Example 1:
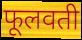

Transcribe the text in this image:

फूलवती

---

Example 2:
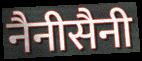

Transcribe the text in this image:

नैनीसैनी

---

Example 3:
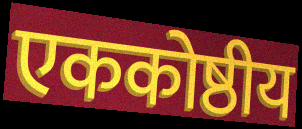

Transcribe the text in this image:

एककोष्ठीय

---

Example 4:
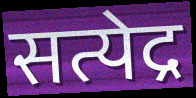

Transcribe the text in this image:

सत्येद्र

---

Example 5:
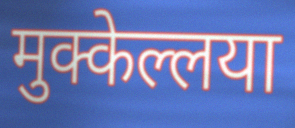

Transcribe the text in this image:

मुक्केल्लया